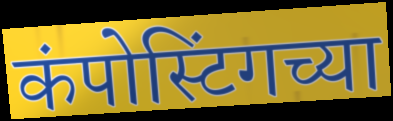
कंपोस्टिंगच्या